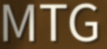
MTG